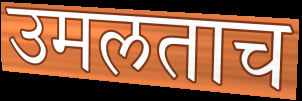
उमलताच